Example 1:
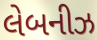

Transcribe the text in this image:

લેબનીઝ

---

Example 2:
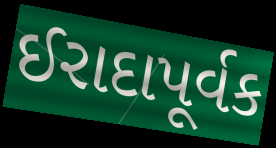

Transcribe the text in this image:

ઈરાદાપૂર્વક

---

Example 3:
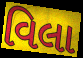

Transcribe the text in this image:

વિલા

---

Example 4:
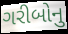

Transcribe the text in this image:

ગરીબોનુ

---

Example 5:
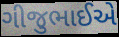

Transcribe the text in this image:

ગીજુભાઈએ